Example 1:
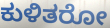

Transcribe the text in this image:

ಕುಳಿತರೋ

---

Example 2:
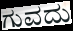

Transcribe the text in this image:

ಗುವದು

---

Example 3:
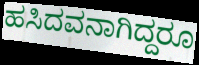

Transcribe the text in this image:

ಹಸಿದವನಾಗಿದ್ದರೂ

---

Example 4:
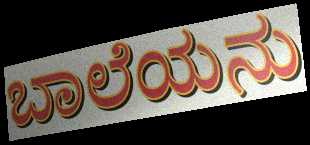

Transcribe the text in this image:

ಬಾಲೆಯನು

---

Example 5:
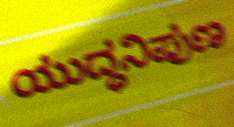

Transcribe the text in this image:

ಯುದ್ಧನಿಪುಣ